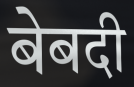
बेबदी